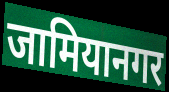
जामियानगर